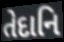
તેદાનિ